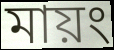
মায়ং